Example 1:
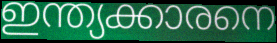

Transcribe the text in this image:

ഇന്ത്യക്കാരനെ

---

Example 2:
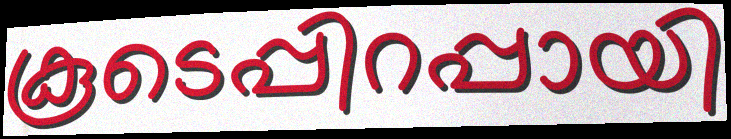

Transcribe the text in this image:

കൂടെപ്പിറപ്പായി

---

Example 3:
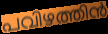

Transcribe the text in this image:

പവിഴത്തിൻ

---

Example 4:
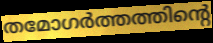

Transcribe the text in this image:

തമോഗർത്തത്തിന്റെ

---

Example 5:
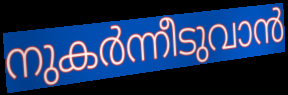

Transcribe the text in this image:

നുകർന്നീടുവാൻ